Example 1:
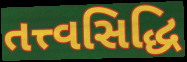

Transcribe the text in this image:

તત્ત્વસિદ્ધિ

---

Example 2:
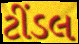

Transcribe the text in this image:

ટીંડલ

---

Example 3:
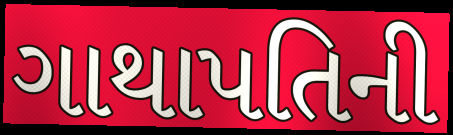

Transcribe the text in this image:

ગાથાપતિની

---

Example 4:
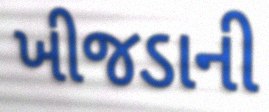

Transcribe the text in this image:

ખીજડાની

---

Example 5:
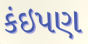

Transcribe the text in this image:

કંઇપણ